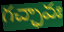
గచ్ఛావః